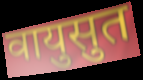
वायुसुत